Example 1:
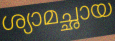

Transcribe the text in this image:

ശ്യാമച്ഛായ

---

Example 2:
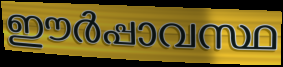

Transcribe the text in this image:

ഈർപ്പാവസ്ഥ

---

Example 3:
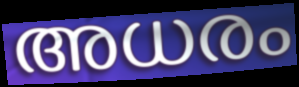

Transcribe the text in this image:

അധരം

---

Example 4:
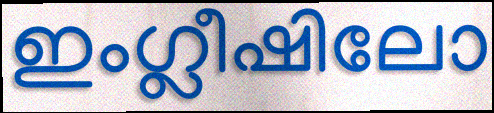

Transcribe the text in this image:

ഇംഗ്ലീഷിലോ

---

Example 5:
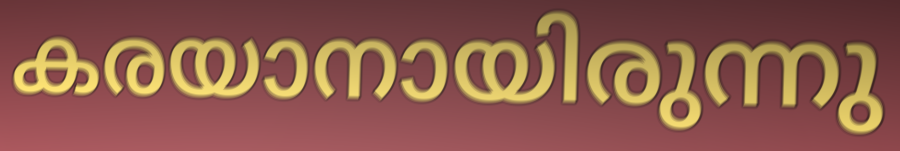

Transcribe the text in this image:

കരയാനായിരുന്നു